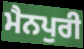
ਮੈਨਪੁਰੀ